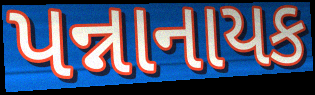
પન્નાનાયક